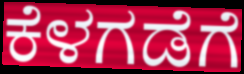
ಕೆಳಗಡೆಗೆ